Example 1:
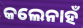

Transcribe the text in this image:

କଲେନାହଁ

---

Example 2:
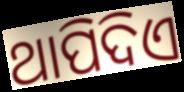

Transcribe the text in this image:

ଥାପିଦିଏ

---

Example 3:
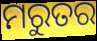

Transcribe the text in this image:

ମରୁତର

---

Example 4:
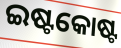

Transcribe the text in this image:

ଇଷ୍ଟକୋଷ୍ଟ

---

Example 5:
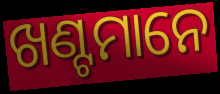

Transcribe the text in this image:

ଖଣ୍ଟମାନେ